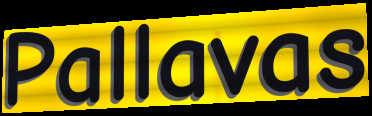
Pallavas